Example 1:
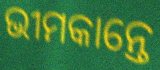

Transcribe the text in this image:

ଭୀମକାନ୍ତେ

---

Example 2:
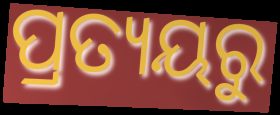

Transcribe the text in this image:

ପ୍ରତ୍ୟୟରୁ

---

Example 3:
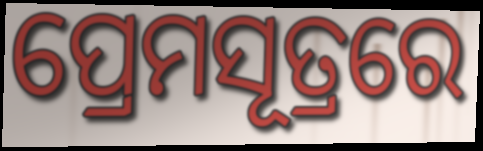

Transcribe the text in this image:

ପ୍ରେମସୂତ୍ରରେ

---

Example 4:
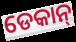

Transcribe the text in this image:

ଡେକାନ୍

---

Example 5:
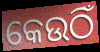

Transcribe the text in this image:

କେଉଠିଁ